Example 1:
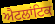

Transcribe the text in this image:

ਐਟਲਾਂਟਿਕ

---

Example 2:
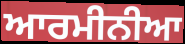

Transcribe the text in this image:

ਆਰਮੀਨੀਆ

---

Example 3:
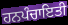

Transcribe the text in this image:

ਹਨਪੰਚਾਇਤੀ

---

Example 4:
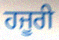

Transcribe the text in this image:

ਹਜੂਰੀ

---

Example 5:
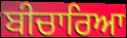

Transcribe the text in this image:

ਬੀਚਾਰਿਆ